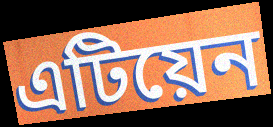
এটিয়েন